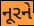
નૂરને